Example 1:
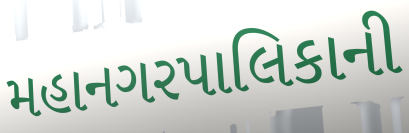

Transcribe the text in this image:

મહાનગરપાલિકાની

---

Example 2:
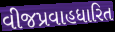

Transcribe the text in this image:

વીજપ્રવાહધારિત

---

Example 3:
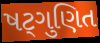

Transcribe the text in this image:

ષટ્ગુણિત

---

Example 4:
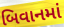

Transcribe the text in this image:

બિવાનમાં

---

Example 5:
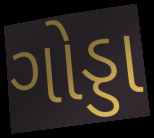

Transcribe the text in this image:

ગોડ્ડા